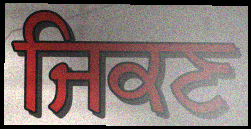
ਜਿਕਣ